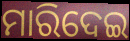
ମାରିଦେଇ